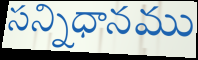
సన్నిధానము